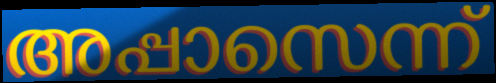
അപ്പാസെന്ന്